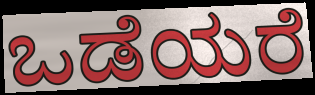
ಒಡೆಯರೆ